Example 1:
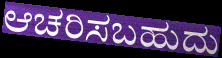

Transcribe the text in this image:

ಆಚರಿಸಬಹುದು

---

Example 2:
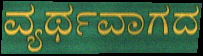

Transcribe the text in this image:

ವ್ಯರ್ಥವಾಗದ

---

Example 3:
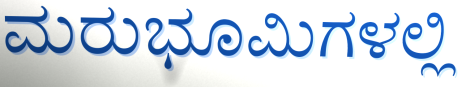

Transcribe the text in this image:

ಮರುಭೂಮಿಗಳಲ್ಲಿ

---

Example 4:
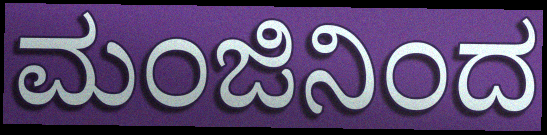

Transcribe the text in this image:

ಮಂಜಿನಿಂದ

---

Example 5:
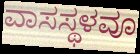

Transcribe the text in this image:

ವಾಸಸ್ಥಳವೂ